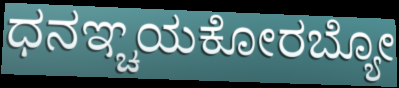
ಧನಞ್ಚಯಕೋರಬ್ಯೋ